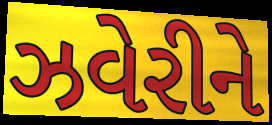
ઝવેરીને